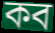
কব